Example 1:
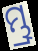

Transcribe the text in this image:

ମ୍ଭ୍ର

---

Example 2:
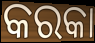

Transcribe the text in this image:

କରକା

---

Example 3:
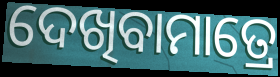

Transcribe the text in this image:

ଦେଖିବାମାତ୍ରେ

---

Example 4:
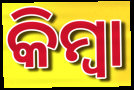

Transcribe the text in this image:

କିମ୍ବା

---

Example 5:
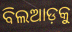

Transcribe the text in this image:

ବିଲଆଡ଼କୁ